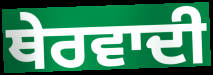
ਥੇਰਵਾਦੀ